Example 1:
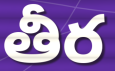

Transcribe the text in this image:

తీర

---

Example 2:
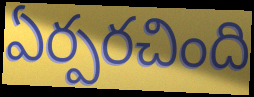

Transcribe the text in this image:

ఏర్పరచింది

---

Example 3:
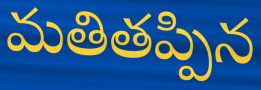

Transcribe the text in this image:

మతితప్పిన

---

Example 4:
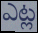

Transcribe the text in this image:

ఎట్ల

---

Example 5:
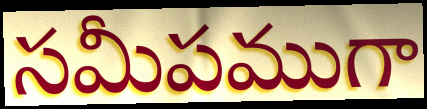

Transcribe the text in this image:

సమీపముగా